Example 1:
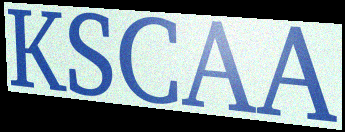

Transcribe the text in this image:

KSCAA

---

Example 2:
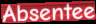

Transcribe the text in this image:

Absentee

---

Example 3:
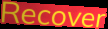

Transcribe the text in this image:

Recover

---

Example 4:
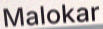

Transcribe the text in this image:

Malokar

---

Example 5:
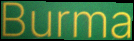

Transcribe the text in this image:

Burma